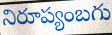
నిరూప్యంబగు